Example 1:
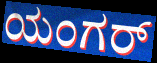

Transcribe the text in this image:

ಯಂಗರ್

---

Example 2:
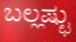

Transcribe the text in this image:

ಬಲ್ಲಷ್ಟು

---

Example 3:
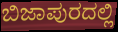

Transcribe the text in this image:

ಬಿಜಾಪುರದಲ್ಲಿ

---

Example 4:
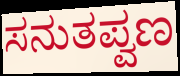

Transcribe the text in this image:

ಸನುತಪ್ವಣ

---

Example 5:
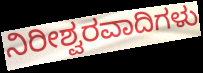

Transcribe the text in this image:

ನಿರೀಶ್ವರವಾದಿಗಳು